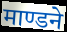
माण्डने